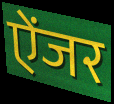
ऐंजर